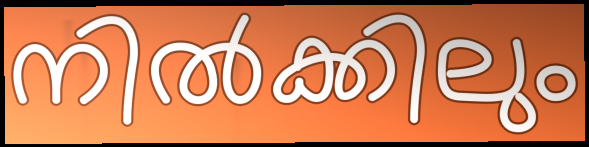
നിൽക്കിലും